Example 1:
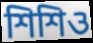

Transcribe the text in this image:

শিশিও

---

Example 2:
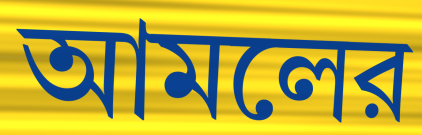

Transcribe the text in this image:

আমলের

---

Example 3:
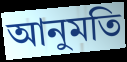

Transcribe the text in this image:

আনুমতি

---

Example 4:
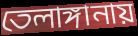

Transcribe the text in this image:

তেলাঙ্গানায়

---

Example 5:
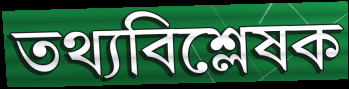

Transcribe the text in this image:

তথ্যবিশ্লেষক